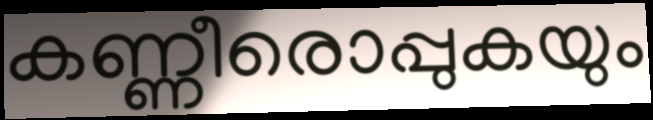
കണ്ണീരൊപ്പുകയും